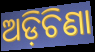
ଅଡ଼ିଚିଣା